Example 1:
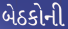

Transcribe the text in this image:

બેઠકોની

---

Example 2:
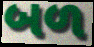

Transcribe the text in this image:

બળ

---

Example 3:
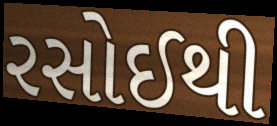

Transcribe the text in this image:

રસોઈથી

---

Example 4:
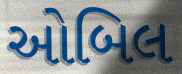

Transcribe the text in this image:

ઓબિલ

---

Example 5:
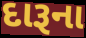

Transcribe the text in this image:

દારૂના